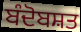
ਬੰਦੋਬਸ਼ਤ